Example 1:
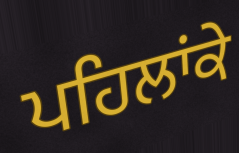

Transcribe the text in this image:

ਪਹਿਲਾਂਕੇ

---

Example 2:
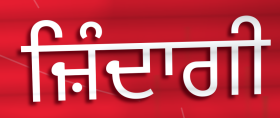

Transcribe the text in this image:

ਜ਼ਿੰਦਾਗੀ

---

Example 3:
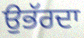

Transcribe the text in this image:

ਉਭੱਰਦਾ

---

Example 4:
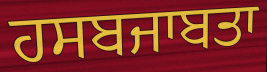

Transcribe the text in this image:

ਹਸਬਜਾਬਤਾ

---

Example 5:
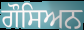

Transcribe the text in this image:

ਗੌਸਿਅਨ